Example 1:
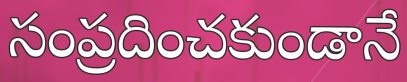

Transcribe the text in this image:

సంప్రదించకుండానే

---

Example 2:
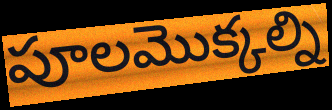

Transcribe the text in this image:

పూలమొక్కల్ని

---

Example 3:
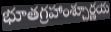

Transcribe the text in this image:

భూతగ్రహాంశ్చూర్ణయ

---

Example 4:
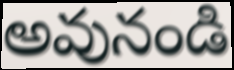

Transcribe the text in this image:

అవునండి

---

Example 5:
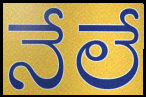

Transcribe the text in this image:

నేలే